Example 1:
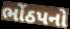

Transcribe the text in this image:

ભોંઠપનો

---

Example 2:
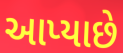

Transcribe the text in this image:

આપ્યાછે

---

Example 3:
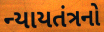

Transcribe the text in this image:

ન્યાયતંત્રનો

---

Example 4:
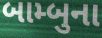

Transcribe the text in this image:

બામ્બુના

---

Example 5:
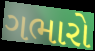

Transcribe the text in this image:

ગભારો